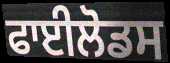
ਫਾਈਲੋਡਸ